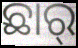
ଛାର୍